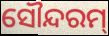
ସୌନ୍ଦରମ୍